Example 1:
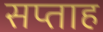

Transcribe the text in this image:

सप्ताह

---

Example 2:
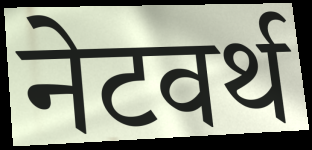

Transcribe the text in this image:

नेटवर्थ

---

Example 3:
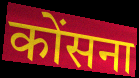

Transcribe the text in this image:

कोंसना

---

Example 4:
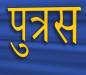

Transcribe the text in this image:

पुत्रस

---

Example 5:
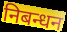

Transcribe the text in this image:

निबन्धन